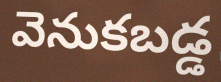
వెనుకబడ్డ